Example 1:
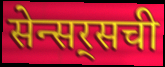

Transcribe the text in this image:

सेन्सर्सची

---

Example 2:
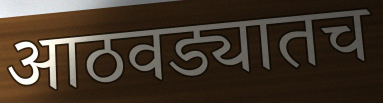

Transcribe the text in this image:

आठवड्यातच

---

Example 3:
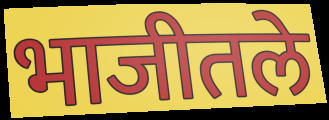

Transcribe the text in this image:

भाजीतले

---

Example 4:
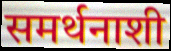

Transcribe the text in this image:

समर्थनाशी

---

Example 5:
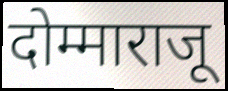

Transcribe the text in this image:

दोम्माराजू